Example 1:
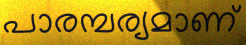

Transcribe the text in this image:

പാരമ്പര്യമാണ്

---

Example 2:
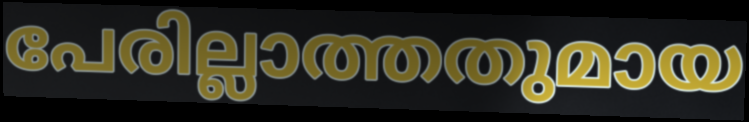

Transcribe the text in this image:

പേരില്ലാത്തതുമായ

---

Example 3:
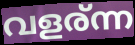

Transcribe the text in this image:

വളര്ന്ന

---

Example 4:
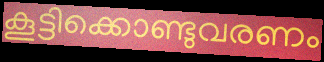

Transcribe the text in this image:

കൂട്ടിക്കൊണ്ടുവരണം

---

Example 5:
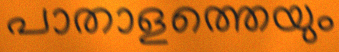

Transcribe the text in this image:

പാതാളത്തെയും